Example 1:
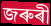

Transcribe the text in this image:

জৰুৰী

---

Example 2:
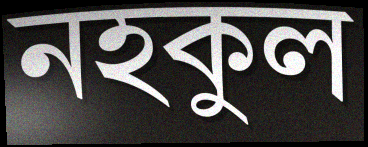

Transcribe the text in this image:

নহকুল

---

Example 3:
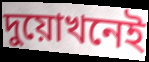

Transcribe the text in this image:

দুয়োখনেই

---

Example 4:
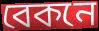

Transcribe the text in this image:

বেকনে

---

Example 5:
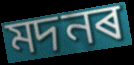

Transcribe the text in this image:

মদনৰ